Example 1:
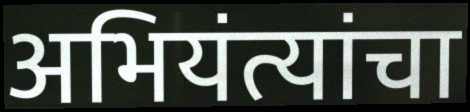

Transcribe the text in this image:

अभियंत्यांचा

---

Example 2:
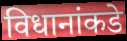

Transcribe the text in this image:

विधानांकडे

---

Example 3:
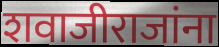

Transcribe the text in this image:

शवाजीराजांना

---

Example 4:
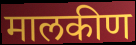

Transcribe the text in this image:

मालकीण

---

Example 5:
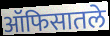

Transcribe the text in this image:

ऑफिसातले